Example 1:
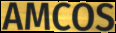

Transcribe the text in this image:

AMCOS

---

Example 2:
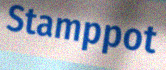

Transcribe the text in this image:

Stamppot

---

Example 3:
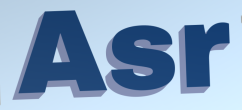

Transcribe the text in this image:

Asr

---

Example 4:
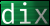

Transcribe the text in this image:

dix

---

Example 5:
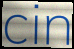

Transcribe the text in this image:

cin